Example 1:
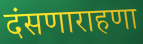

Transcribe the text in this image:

दंसणाराहणा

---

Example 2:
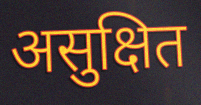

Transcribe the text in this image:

असुक्षित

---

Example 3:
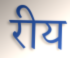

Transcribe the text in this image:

रीय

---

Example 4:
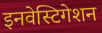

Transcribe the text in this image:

इनवेस्टिगेशन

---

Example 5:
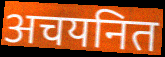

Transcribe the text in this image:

अचयनित